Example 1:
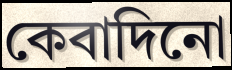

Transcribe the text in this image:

কেবাদিনো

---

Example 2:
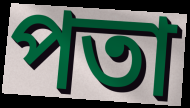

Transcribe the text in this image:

পতা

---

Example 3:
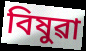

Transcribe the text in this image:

বিষুৱা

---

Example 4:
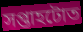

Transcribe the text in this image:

সপ্তাহটোত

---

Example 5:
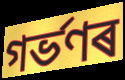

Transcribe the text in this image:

গৰ্ভণৰ